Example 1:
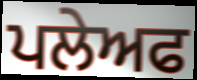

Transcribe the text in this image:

ਪਲੇਅਫ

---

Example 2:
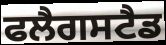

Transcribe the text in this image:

ਫਲੈਗਸਟੈਡ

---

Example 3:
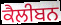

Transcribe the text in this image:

ਕੈਲੀਬਨ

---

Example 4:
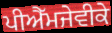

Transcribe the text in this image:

ਪੀਐੱਮਜੇਵੀਕੇ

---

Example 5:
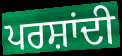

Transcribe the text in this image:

ਪਰਸ਼ਾਂਦੀ